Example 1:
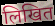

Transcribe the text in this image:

लिखित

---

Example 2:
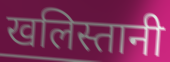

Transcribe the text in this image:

खलिस्तानी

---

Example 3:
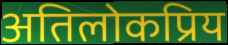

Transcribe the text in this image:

अतिलोकप्रिय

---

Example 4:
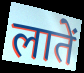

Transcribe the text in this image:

लातें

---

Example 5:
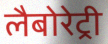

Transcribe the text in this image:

लैबोरेट्री